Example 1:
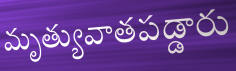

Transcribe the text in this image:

మృత్యువాతపడ్డారు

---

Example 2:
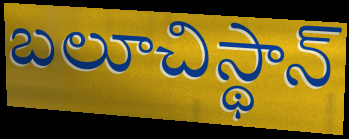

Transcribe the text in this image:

బలూచిస్థాన్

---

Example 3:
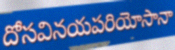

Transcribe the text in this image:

దోసవినయపరియోసానా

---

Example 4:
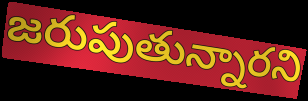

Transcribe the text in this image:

జరుపుతున్నారని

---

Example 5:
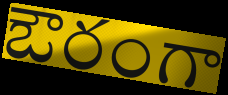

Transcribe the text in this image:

ఔరంగా